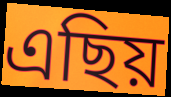
এছিয়